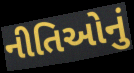
નીતિઓનું